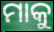
ମାକୁ